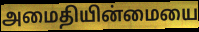
அமைதியின்மையை